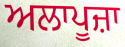
ਅਲਾਪੂਜ਼ਾ